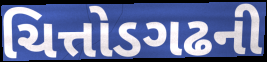
ચિત્તોડગઢની